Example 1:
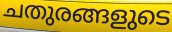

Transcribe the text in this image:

ചതുരങ്ങളുടെ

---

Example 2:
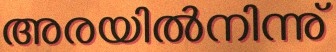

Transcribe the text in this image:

അരയിൽനിന്നു്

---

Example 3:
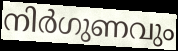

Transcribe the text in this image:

നിർഗുണവും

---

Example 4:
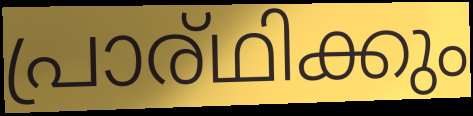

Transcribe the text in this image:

പ്രാര്ഥിക്കും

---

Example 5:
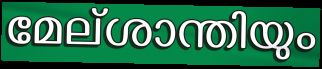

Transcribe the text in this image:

മേല്ശാന്തിയും